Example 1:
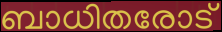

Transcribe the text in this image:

ബാധിതരോട്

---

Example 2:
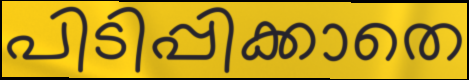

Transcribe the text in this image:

പിടിപ്പിക്കാതെ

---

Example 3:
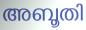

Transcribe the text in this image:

അബൂതി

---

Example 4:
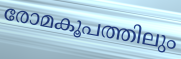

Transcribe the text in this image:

രോമകൂപത്തിലും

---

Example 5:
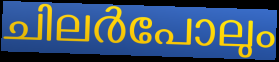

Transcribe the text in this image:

ചിലർപോലും